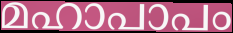
മഹാപാപം